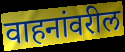
वाहनांवरील